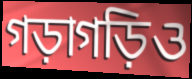
গড়াগড়িও